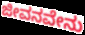
ಜೀವನವೇನು